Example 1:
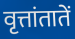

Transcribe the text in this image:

वृत्तांतातें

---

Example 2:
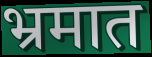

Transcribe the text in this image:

भ्रमात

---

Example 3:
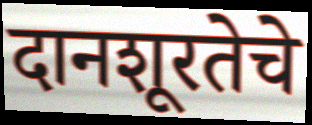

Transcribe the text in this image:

दानशूरतेचे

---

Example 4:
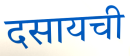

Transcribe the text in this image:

दसायची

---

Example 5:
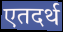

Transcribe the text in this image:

एतदर्थ